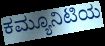
ಕಮ್ಯೂನಿಟಿಯ